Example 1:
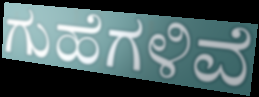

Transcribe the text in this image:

ಗುಹೆಗಳಿವೆ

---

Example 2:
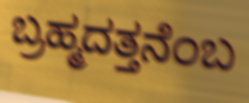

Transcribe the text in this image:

ಬ್ರಹ್ಮದತ್ತನೆಂಬ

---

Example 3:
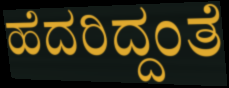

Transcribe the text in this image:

ಹೆದರಿದ್ದಂತೆ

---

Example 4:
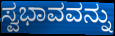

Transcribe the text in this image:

ಸ್ವಭಾವವನ್ನು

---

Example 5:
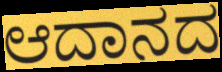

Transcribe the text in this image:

ಆದಾನದ